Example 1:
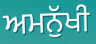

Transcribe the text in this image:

ਅਮਨੁੱਖੀ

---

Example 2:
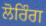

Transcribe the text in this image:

ਲੋਰਿੰਗ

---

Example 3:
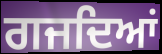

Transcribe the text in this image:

ਗਜਦਿਆਂ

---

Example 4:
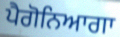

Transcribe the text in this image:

ਪੈਗੋਨਿਆਗਾ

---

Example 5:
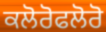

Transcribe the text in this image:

ਕਲੋਰੋਫਲੋਰੋ